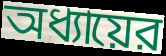
অধ্যায়ের